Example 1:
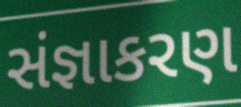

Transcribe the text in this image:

સંજ્ઞાકરણ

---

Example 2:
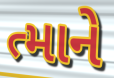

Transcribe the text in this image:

ત્માને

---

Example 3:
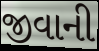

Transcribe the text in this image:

જીવાની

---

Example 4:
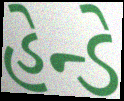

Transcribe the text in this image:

હેન્ડે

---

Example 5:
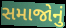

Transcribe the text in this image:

સમાજોનું